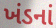
ખંડનાં